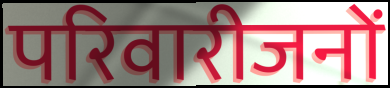
परिवारीजनों